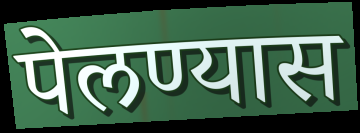
पेलण्यास